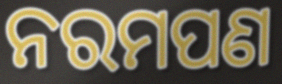
ନରମପଣ